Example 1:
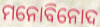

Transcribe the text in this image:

ମନୋବିନୋଦ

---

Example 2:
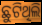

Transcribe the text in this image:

ଛୁଟିଥିଲି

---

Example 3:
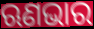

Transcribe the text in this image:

ଋଣଭାର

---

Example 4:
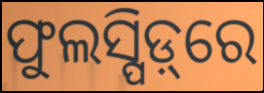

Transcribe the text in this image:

ଫୁଲସ୍ପିଡ଼୍‌ରେ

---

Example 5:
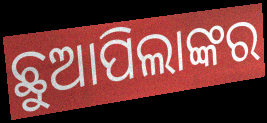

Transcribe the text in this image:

ଛୁଆପିଲାଙ୍କର